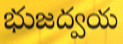
భుజద్వయ